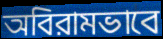
অবিরামভাবে